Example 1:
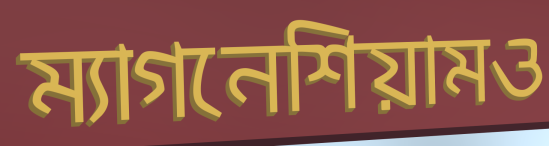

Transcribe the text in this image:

ম্যাগনেশিয়ামও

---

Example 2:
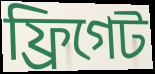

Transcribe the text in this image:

ফ্রিগেট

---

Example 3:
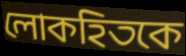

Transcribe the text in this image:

লোকহিতকে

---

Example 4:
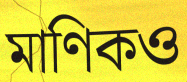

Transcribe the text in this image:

মাণিকও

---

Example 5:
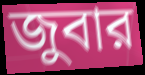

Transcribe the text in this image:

জুবার